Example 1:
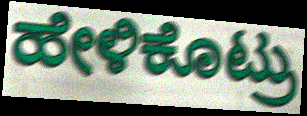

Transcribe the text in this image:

ಹೇಳಿಕೊಟ್ರು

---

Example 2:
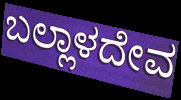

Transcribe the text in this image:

ಬಲ್ಲಾಳದೇವ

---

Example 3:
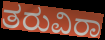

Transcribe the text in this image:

ತರುವಿರಾ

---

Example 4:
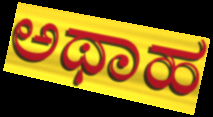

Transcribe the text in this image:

ಅಥಾಹ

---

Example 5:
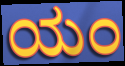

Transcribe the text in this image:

ಯಂ